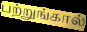
பற்றுங்கால்